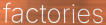
factories